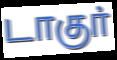
டாகுர்